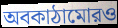
অবকাঠামোরও